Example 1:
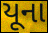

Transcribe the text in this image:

યૂના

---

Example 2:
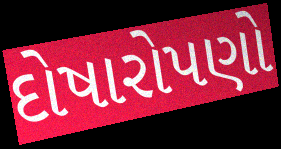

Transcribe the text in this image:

દોષારોપણો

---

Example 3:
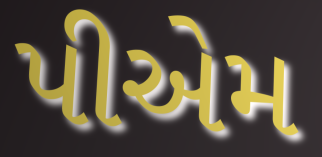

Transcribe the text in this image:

પીએમ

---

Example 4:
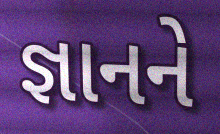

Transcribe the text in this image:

જ્ઞાનને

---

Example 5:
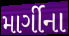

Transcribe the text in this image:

માર્ગીના